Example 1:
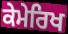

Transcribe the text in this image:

ਕੇਮੇਰਿਖ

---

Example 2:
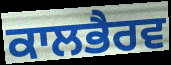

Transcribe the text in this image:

ਕਾਲਭੈਰਵ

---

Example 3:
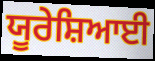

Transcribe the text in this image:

ਯੂਰੇਸ਼ਿਆਈ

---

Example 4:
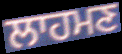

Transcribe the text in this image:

ਲਾਹਮਣ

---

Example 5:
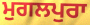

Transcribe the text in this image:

ਮੁਗਲਪੁਰਾ